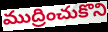
ముద్రించుకొని